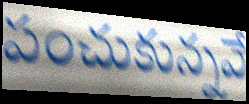
పంచుకున్నవే